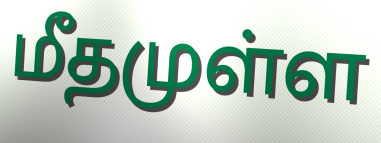
மீதமுள்ள